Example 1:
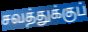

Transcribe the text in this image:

சவத்துக்குப்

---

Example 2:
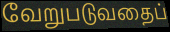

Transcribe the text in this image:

வேறுபடுவதைப்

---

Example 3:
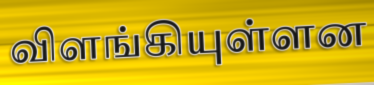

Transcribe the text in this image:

விளங்கியுள்ளன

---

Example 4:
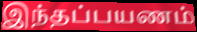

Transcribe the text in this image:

இந்தப்பயணம்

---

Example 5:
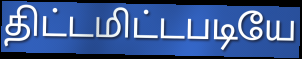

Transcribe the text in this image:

திட்டமிட்டபடியே